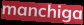
manchiga